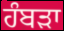
ਹੰਬੜਾ